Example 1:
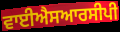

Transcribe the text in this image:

ਵਾਈਐਸਆਰਸੀਪੀ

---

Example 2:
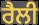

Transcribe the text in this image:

ਰੈਲੀ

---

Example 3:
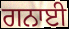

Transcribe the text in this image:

ਗਨਾਈ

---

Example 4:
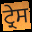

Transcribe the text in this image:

ਟ੍ਰੇਸ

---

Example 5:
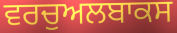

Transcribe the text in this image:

ਵਰਚੁਅਲਬਾਕਸ